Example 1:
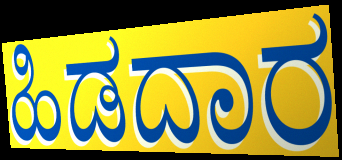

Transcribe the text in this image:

ಹಿಡದಾರ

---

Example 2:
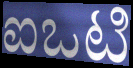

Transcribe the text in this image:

ಐಒಟಿ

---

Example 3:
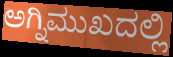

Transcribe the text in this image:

ಅಗ್ನಿಮುಖದಲ್ಲಿ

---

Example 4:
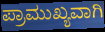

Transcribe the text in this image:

ಪ್ರಾಮುಖ್ಯವಾಗಿ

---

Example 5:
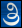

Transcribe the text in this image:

ತಿ